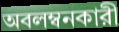
অবলম্বনকারী